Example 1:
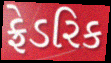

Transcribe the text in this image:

ફ્રેડરિક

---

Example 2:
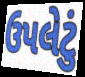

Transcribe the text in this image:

ઉપલેટું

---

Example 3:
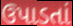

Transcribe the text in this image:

ઉપાડતાં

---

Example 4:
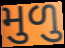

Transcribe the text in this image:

મુળુ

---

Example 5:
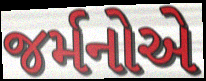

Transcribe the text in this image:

જર્મનોએ